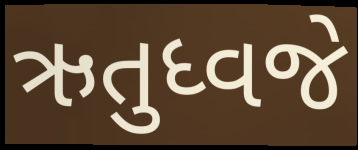
ઋતુધ્વજે